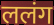
ललंग